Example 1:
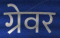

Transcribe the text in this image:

ग्रेवर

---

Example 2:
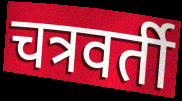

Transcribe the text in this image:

चत्रवर्ती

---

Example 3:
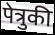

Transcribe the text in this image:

पेत्रुकी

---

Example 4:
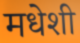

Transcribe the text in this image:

मधेशी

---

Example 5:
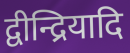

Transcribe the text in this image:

द्वीन्द्रियादि